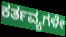
ಕರ್ತವ್ಯಗಳೇ